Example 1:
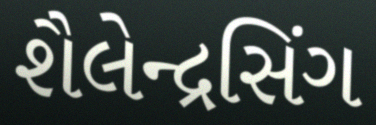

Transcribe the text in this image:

શૈલેન્દ્રસિંગ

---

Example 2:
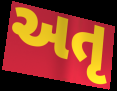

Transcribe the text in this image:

અતૃ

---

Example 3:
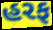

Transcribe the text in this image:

હરફ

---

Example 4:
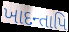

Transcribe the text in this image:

ખાદન્તાપિ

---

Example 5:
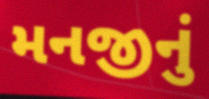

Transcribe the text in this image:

મનજીનું